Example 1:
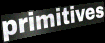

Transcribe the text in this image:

primitives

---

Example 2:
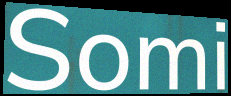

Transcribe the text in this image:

Somi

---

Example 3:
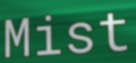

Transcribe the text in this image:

Mist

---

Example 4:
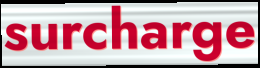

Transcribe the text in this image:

surcharge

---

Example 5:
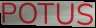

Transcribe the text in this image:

POTUS